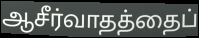
ஆசீர்வாதத்தைப்